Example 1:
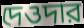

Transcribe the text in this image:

দেওদার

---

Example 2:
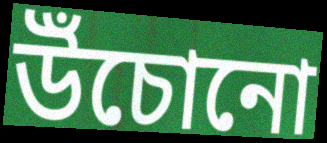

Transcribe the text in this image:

উঁচোনো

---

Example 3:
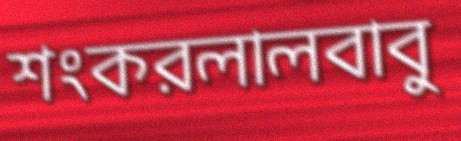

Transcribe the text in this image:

শংকরলালবাবু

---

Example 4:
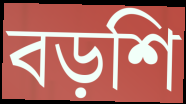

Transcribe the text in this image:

বড়শি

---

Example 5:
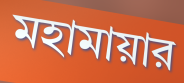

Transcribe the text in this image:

মহামায়ার